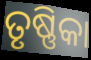
ତୃଷ୍ଣିକା